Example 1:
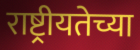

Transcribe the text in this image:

राष्ट्रीयतेच्या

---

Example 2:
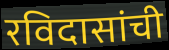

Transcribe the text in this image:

रविदासांची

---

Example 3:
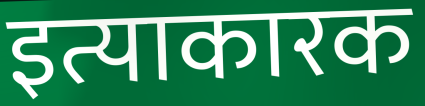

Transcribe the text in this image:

इत्याकारक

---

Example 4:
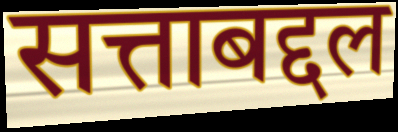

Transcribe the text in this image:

सत्ताबद्दल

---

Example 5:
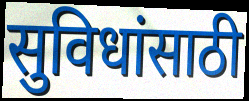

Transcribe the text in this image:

सुविधांसाठी